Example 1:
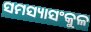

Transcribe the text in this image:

ସମସ୍ୟାସଂକୁଳ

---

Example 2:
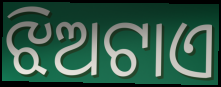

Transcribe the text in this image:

ଝିଅଟାଏ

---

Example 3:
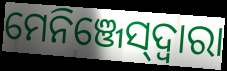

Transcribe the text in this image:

ମେନିଞ୍ଜେସ୍‌ଦ୍ୱାରା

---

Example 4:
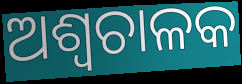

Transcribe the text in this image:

ଅଶ୍ୱଚାଳକ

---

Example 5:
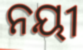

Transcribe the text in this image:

ନୟୀ